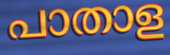
പാതാള